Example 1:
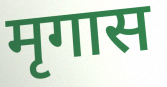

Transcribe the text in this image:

मृगास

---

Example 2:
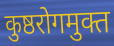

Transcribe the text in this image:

कुष्ठरोगमुक्त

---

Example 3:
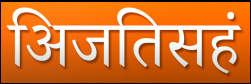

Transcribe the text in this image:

अिजतिसहं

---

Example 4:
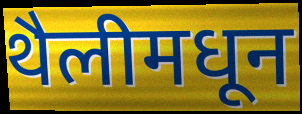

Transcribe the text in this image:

थैलीमधून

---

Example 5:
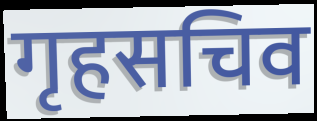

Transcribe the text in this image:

गृहसचिव